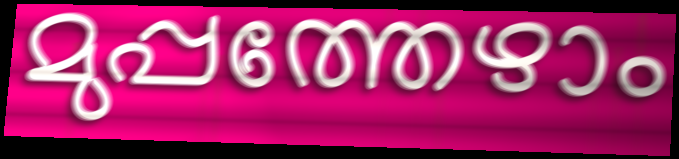
മുപ്പത്തേഴാം